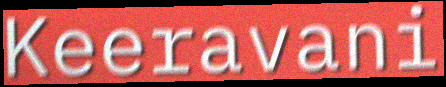
Keeravani